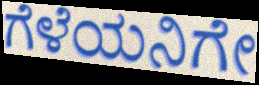
ಗೆಳೆಯನಿಗೇ